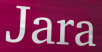
Jara